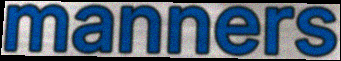
manners